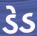
ડેડ